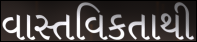
વાસ્તવિકતાથી